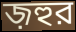
জ়হুর